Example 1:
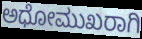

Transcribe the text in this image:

ಅಧೋಮುಖರಾಗಿ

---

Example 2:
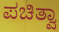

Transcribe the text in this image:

ಪಚಿತ್ವಾ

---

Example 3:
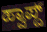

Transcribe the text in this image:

ಹ್ವಾಪ್ದ್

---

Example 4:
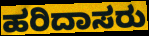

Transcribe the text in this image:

ಹರಿದಾಸರು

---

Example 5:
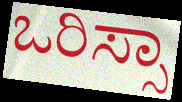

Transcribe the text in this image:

ಒರಿಸ್ಸಾ